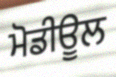
ਮੋਡੀਊਲ